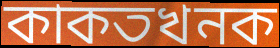
কাকতখনক